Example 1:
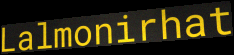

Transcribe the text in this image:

Lalmonirhat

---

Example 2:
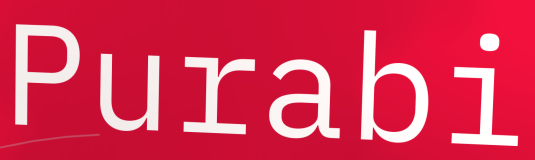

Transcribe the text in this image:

Purabi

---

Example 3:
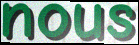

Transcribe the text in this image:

nous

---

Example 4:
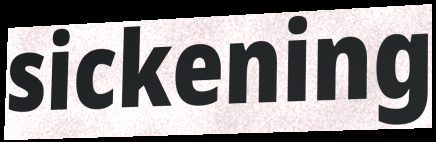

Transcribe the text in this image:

sickening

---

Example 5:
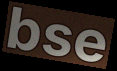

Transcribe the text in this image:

bse